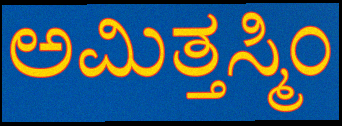
ಅಮಿತ್ತಸ್ಮಿಂ